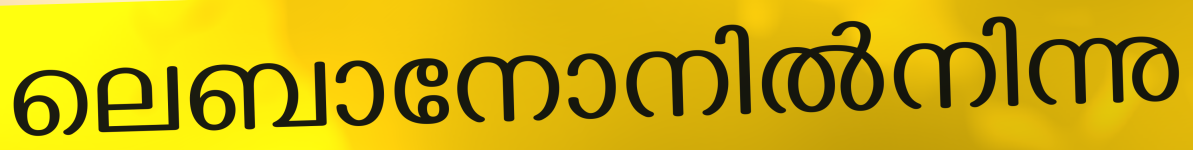
ലെബാനോനിൽനിന്നു